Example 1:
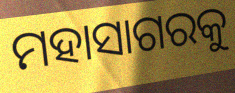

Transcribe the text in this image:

ମହାସାଗରକୁ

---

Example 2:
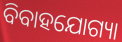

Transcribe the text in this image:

ବିବାହଯୋଗ୍ୟା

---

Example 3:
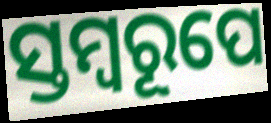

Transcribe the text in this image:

ସ୍ତମ୍ବରୂପେ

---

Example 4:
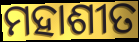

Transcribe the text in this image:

ମହାଶୀତ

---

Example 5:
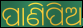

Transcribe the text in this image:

ପାଣିପିଅ